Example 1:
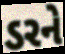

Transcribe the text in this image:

ડરને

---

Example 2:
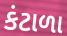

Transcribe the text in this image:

કંટાળા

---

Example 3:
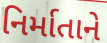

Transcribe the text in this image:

નિર્માતાને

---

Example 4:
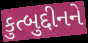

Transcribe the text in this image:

કુત્બુદ્દીનને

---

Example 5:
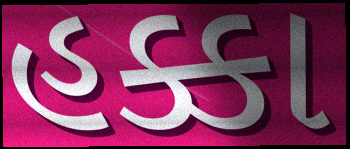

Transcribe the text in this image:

હક્કા